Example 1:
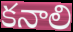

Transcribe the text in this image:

కనాలి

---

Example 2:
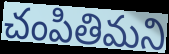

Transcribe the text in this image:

చంపితిమని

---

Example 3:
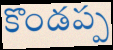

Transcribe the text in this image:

కొండప్ప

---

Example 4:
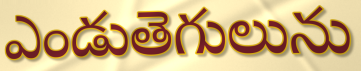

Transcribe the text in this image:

ఎండుతెగులును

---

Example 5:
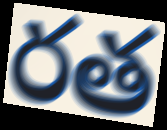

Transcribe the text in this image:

రత